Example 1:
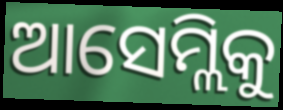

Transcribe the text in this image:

ଆସେମ୍ଲିକୁ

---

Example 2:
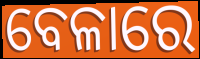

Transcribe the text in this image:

ବେଳାରେ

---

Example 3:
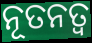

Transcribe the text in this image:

ନୂତନତ୍ୱ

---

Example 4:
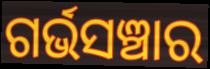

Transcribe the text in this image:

ଗର୍ଭସଞ୍ଚାର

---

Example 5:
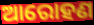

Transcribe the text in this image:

ଆରୋହଣ